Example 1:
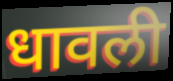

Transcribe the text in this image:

धावली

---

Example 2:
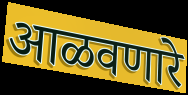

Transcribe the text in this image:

आळवणारे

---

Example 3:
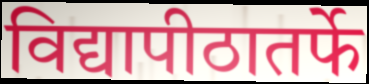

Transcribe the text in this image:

विद्यापीठातर्फे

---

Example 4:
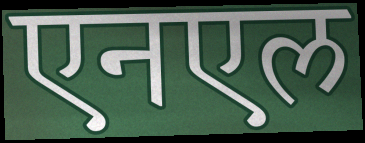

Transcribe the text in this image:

एनएल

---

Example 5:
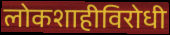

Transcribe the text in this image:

लोकशाहीविरोधी